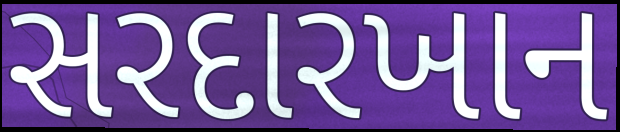
સરદારખાન